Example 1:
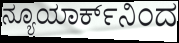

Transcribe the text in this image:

ನ್ಯೂಯಾರ್ಕ್‌ನಿಂದ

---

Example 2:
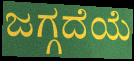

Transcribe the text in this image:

ಜಗ್ಗದೆಯೆ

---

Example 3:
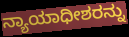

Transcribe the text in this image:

ನ್ಯಾಯಾಧೀಶರನ್ನು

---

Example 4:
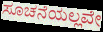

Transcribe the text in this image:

ಸೂಚನೆಯಲ್ಲವೇ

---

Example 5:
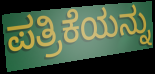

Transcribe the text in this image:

ಪತ್ರಿಕೆಯನ್ನು